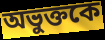
অভুক্তকে